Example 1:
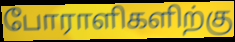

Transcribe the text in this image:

போராளிகளிற்கு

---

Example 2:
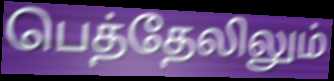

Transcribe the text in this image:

பெத்தேலிலும்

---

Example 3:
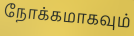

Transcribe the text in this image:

நோக்கமாகவும்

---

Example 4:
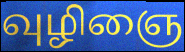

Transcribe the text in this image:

வுழிஞை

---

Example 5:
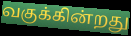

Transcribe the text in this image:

வகுக்கின்றது